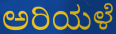
ಅರಿಯಳೆ